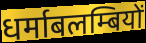
धर्माबलम्बियों